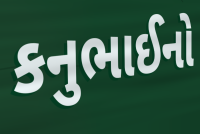
કનુભાઈનો